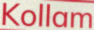
Kollam